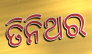
ତିନିଥର